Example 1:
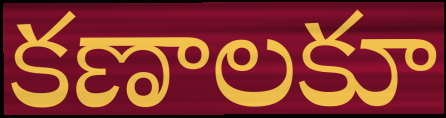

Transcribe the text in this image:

కణాలకూ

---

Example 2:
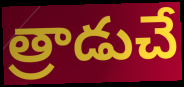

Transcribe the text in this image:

త్రాడుచే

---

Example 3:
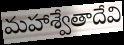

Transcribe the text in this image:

మహాశ్వేతాదేవి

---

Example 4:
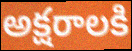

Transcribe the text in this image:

అక్షరాలకి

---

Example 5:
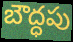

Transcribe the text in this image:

బౌద్ధపు